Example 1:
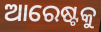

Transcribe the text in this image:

ଆରେଷ୍ଟକୁ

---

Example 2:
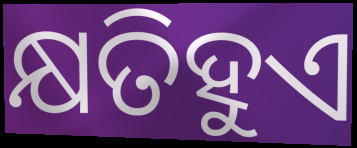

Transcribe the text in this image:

କ୍ଷତିହୁଏ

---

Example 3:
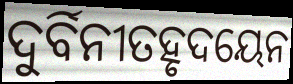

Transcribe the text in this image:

ଦୁର୍ବିନୀତହୃଦୟେନ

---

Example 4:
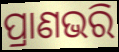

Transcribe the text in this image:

ପ୍ରାଣଭରି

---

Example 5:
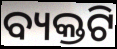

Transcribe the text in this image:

ବ୍ୟକ୍ତଟି